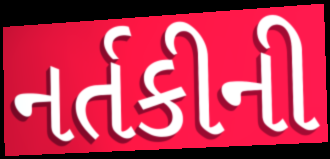
નર્તકીની